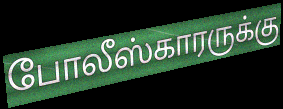
போலீஸ்காரருக்கு